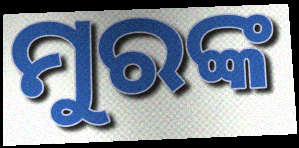
ମୁରଙ୍କ